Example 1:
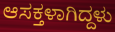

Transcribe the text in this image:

ಆಸಕ್ತಳಾಗಿದ್ದಳು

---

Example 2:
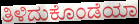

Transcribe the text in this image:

ತಿಳಿದುಕೊಂಡೆಯಾ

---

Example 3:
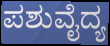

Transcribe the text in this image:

ಪಶುವೈದ್ಯ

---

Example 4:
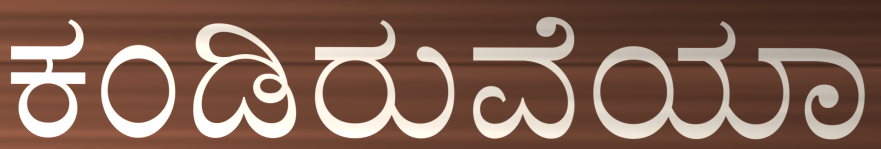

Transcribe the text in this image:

ಕಂಡಿರುವೆಯಾ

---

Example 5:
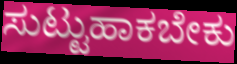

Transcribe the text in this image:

ಸುಟ್ಟುಹಾಕಬೇಕು